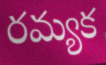
రమ్యక